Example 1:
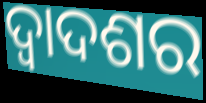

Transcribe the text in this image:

ଦ୍ୱାଦଶର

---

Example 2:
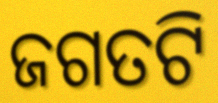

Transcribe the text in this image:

ଜଗତଟି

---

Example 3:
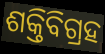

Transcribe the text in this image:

ଶକ୍ତିବିଗ୍ରହ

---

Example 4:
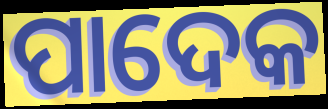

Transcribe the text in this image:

ପାଦେକ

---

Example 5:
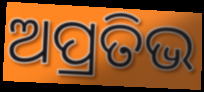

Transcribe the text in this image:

ଅପ୍ରତିଭ